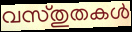
വസ്തുതകൾ